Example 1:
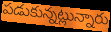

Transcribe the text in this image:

పడుకున్నట్లున్నారు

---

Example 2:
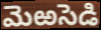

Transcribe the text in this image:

మెఱసెడి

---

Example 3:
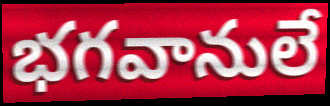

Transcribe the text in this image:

భగవానులే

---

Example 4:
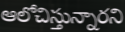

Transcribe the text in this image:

ఆలోచిస్తున్నారని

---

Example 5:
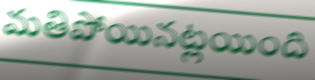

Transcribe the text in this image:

మతిపోయినట్లయింది